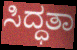
ಸಿದ್ಧತಾ